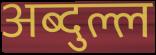
अब्दुल्ल